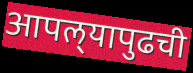
आपल्यापुढची